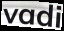
vadi